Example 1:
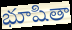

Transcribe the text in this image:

భూషితా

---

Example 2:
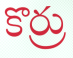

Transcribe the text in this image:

కొర్రు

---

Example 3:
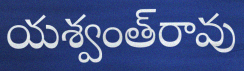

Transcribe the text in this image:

యశ్వంత్‌రావు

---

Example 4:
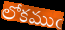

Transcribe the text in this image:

లోకముఁ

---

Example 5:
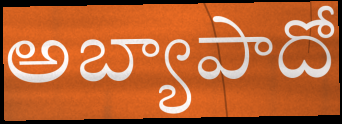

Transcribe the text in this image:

అబ్యాపాదో